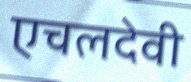
एचलदेवी